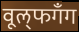
वूल्फगँग